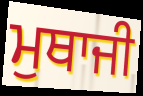
ਮੁਥਾਜੀ